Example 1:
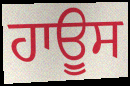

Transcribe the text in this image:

ਹਾਊੁਸ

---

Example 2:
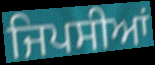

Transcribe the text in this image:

ਜਿਪਸੀਆਂ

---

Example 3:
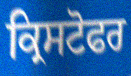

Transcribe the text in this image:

ਕ੍ਰਿਸਟੋਫਰ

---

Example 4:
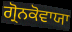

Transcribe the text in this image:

ਗ੍ਰੋਨਕੋਵਾਯਾ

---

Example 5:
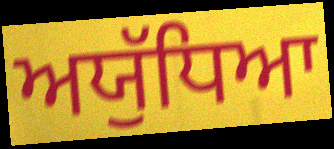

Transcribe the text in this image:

ਅਯੁੱਧਿਆ